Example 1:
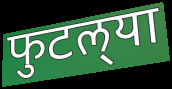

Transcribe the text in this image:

फुटल्या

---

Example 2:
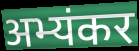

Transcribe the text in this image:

अभ्यंकर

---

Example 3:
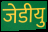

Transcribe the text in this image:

जेडीयु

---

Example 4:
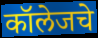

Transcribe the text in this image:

कॉलेजचे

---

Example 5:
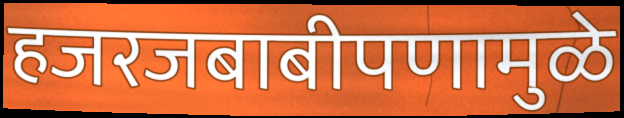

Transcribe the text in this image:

हजरजबाबीपणामुळे